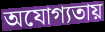
অযোগ্যতায়